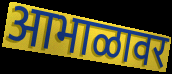
आभाळावर